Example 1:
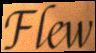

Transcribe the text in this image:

Flew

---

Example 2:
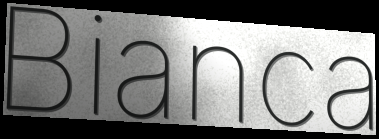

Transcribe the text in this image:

Bianca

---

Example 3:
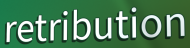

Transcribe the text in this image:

retribution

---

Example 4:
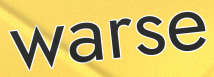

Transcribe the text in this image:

warse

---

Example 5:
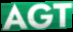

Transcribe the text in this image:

AGT